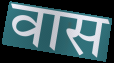
वास